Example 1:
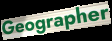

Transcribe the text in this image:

Geographer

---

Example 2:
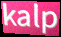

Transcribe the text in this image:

kalp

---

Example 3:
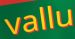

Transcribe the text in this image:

vallu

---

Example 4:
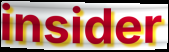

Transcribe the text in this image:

insider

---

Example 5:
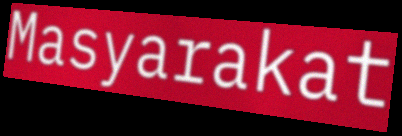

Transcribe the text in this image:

Masyarakat